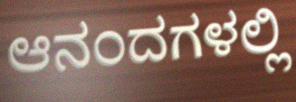
ಆನಂದಗಳಲ್ಲಿ